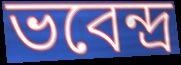
ভবেন্দ্ৰ